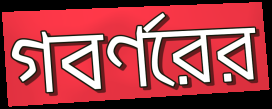
গবর্ণরের